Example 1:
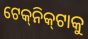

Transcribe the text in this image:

ଟେକ୍‌ନିକ୍‌ଟାକୁ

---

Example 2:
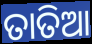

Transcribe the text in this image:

ତାତିଆ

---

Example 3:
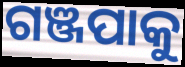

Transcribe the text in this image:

ଗଞ୍ଜପାକୁ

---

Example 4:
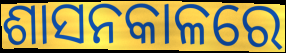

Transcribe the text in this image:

ଶାସନକାଳରେ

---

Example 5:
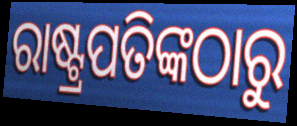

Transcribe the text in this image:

ରାଷ୍ଟ୍ରପତିଙ୍କଠାରୁ